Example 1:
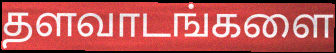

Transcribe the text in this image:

தளவாடங்களை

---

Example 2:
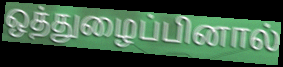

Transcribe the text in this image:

ஒத்துழைப்பினால்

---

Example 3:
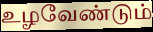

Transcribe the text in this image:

உழவேண்டும்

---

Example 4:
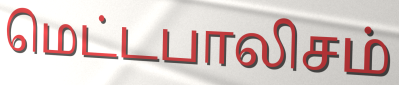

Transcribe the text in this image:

மெட்டபாலிசம்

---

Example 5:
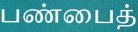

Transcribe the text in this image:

பண்பைத்